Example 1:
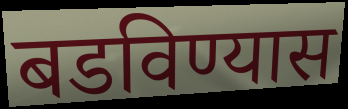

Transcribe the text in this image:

बडविण्यास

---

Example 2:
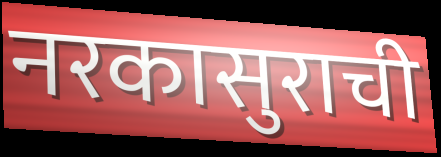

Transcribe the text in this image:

नरकासुराची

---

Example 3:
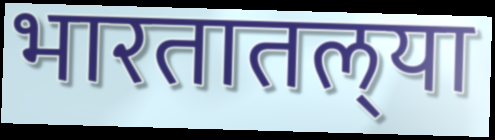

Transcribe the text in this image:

भारतातल्या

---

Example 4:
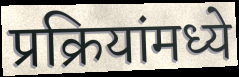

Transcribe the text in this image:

प्रक्रियांमध्ये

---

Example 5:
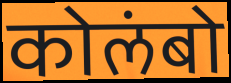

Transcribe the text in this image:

कोलंबो